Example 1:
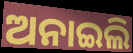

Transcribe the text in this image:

ଅନାଇଲି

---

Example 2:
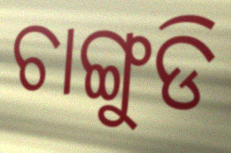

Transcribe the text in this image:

ଚାଙ୍ଗୁଡି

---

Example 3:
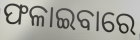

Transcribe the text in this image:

ଫଳାଇବାରେ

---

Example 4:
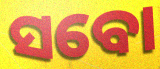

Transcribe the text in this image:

ସବୋ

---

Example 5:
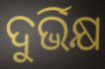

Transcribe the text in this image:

ଦୁର୍ଭିକ୍ଷ